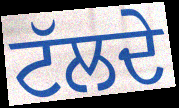
ਟੱਲਦੇ